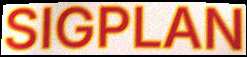
SIGPLAN